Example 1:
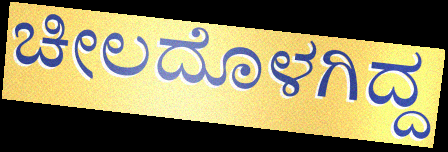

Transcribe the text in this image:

ಚೀಲದೊಳಗಿದ್ದ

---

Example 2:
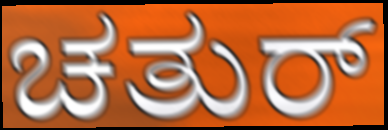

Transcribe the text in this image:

ಚತುರ್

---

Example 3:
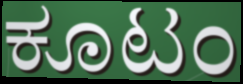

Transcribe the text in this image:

ಕೂಟಂ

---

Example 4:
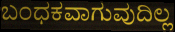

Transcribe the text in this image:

ಬಂಧಕವಾಗುವುದಿಲ್ಲ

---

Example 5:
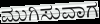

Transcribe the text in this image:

ಮುಗಿಸುವಾಗ